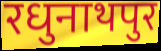
रधुनाथपुर